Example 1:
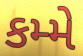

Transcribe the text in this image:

કમ્મે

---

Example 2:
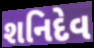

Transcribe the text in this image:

શનિદેવ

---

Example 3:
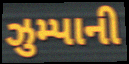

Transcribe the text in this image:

ઝુમ્પાની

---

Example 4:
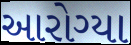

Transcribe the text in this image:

આરોગ્યા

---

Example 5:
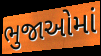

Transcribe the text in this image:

ભુજાઓમાં